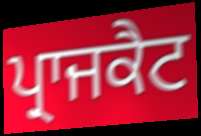
ਪ੍ਰਾਜਕੈਟ